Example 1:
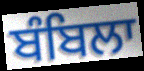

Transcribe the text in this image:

ਬੰਬਿਲਾ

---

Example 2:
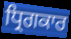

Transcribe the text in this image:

ਧ੍ਰਿਗਕਾਰ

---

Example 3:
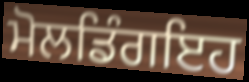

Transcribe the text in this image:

ਮੋਲਡਿੰਗਇਹ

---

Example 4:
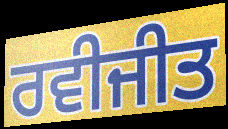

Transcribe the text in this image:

ਰਵੀਜੀਤ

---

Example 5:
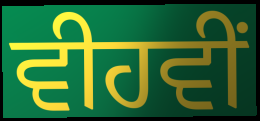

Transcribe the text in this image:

ਵੀਹਵੀਂ